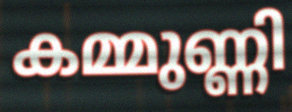
കമ്മുണ്ണി